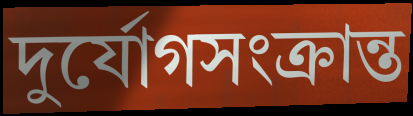
দুর্যোগসংক্রান্ত